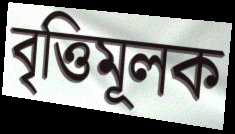
বৃত্তিমূলক